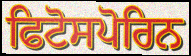
ਫਿਟੋਸਪੋਰਿਨ